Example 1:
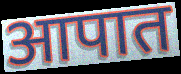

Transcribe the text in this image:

आपात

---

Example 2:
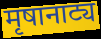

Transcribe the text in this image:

मृषानाट्य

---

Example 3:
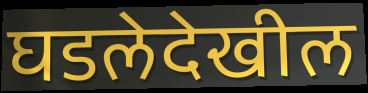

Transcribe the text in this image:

घडलेदेखील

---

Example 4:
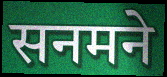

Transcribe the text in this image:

सनमने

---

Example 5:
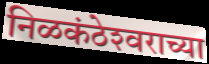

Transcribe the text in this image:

निळकंठेश्वराच्या